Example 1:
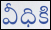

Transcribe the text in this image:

వీధికి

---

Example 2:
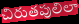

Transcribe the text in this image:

చిరుతపులిలా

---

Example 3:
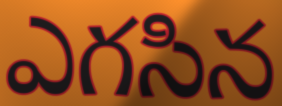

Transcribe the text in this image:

ఎగసిన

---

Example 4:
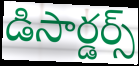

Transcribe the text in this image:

డిసార్డర్స్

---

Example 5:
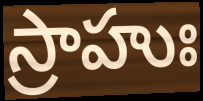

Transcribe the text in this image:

స్రాహుః